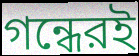
গন্ধেরই